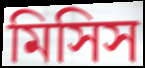
মিসিস